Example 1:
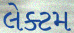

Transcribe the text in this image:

લેક્ટમ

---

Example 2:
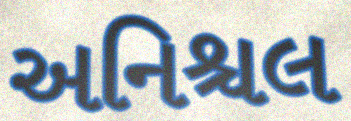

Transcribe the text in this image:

અનિશ્ચલ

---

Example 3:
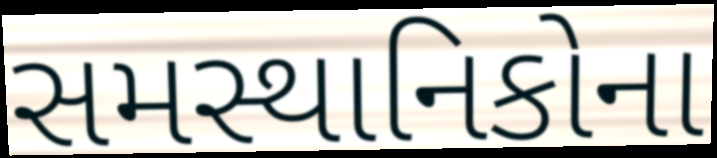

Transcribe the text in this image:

સમસ્થાનિકોના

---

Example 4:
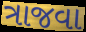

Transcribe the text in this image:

ત્રાજવા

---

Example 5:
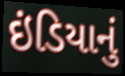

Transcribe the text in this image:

ઇંડિયાનું